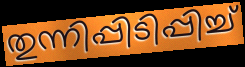
തുന്നിപ്പിടിപ്പിച്ച്